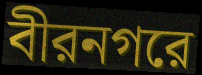
বীরনগরে